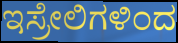
ಇಸ್ರೇಲಿಗಳಿಂದ